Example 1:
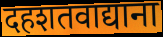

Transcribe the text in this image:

दहशतवाद्याना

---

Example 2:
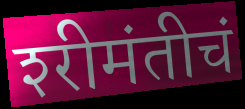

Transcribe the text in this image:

श्रीमंतीचं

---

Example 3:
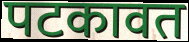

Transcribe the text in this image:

पटकावत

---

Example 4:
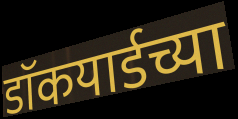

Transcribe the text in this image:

डॉकयार्डच्या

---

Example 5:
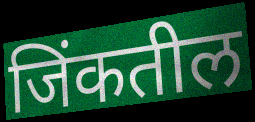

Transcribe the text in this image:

जिंकतील